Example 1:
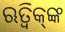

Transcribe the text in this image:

ଋତ୍ୱିକ୍‌ଙ୍କ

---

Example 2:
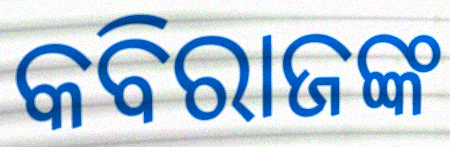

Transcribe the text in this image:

କବିରାଜଙ୍କ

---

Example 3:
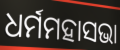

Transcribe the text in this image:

ଧର୍ମମହାସଭା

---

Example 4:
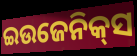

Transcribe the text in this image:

ଇଉଜେନିକ୍‌ସ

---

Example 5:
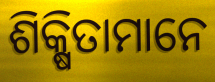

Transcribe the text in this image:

ଶିକ୍ଷିତାମାନେ